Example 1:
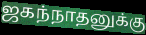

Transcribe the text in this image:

ஜகந்நாதனுக்கு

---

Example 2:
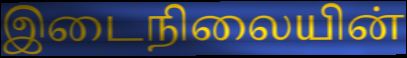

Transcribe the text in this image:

இடைநிலையின்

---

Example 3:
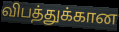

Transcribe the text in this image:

விபத்துக்கான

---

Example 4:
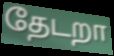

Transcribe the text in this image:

தேடறா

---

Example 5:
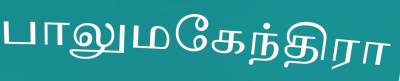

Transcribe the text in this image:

பாலுமகேந்திரா